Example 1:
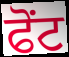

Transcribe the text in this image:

ਫੋਂਟ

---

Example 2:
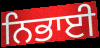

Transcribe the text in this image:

ਨਿਭਾਈ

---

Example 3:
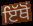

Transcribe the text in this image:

ਇੱਥੋਂ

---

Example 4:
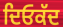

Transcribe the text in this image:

ਦਿਓਕੱਦ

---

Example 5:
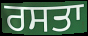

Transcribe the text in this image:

ਰਸਤਾ